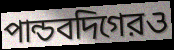
পান্ডবদিগেরও